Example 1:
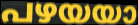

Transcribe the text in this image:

പഴയയാ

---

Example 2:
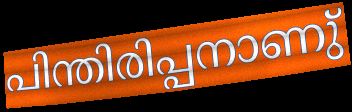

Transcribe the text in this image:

പിന്തിരിപ്പനാണു്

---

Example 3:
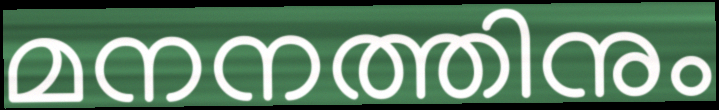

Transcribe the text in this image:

മനനത്തിനും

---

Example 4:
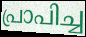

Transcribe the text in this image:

പ്രാപിച്ച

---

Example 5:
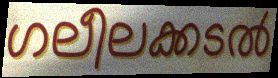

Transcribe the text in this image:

ഗലീലക്കടൽ